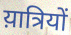
य़ात्रियों